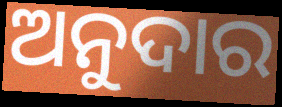
ଅନୁଦାର